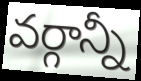
వర్గాన్నీ